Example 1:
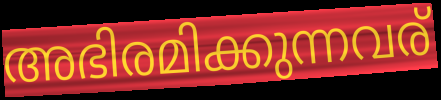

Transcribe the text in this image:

അഭിരമിക്കുന്നവര്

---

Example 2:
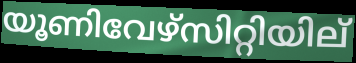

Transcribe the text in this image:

യൂണിവേഴ്സിറ്റിയില്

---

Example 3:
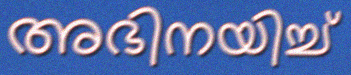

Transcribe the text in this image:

അഭിനയിച്ച്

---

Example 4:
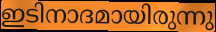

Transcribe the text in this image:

ഇടിനാദമായിരുന്നു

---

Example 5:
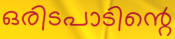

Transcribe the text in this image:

ഒരിടപാടിന്റെ